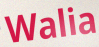
Walia